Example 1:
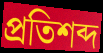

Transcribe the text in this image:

প্ৰতিশব্দ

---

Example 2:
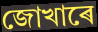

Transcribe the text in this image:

জোখাৰে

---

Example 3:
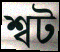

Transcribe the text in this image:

শ্বট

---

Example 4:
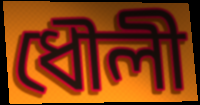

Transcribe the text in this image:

ধৌলী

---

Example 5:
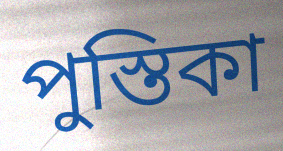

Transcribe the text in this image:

পুস্তিকা